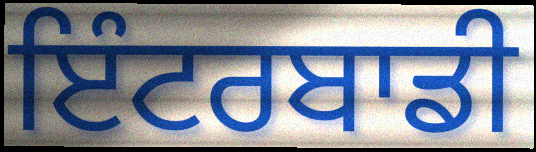
ਇੰਟਰਬਾਡੀ